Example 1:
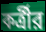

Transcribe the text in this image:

কর্ত্রীর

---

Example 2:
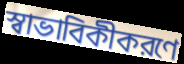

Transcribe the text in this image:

স্বাভাবিকীকরণে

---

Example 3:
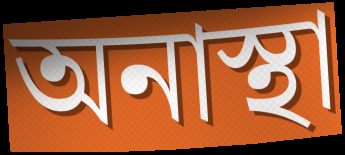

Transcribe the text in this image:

অনাস্থা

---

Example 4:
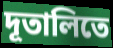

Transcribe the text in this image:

দূতালিতে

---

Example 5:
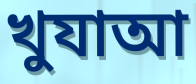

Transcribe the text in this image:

খুযাআ